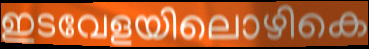
ഇടവേളയിലൊഴികെ